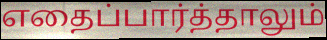
எதைப்பார்த்தாலும்